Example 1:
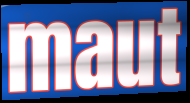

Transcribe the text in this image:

maut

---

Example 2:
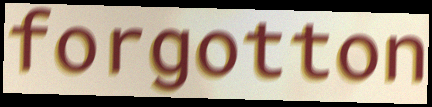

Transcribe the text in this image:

forgotton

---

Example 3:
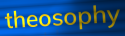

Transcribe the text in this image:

theosophy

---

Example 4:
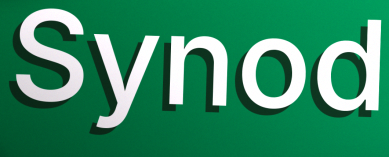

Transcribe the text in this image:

Synod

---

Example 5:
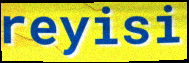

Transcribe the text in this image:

reyisi